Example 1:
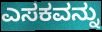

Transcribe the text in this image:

ಎಸಕವನ್ನು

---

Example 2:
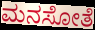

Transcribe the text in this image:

ಮನಸೋತೆ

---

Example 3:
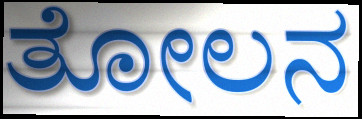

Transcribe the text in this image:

ತೋಲನ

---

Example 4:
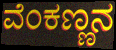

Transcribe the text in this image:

ವೆಂಕಣ್ಣನ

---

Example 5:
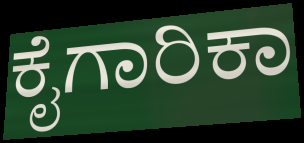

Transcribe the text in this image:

ಕೈಗಾರಿಕಾ